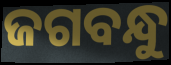
ଜଗବନ୍ଧୁ